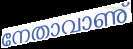
നേതാവാണു്